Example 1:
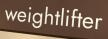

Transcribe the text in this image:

weightlifter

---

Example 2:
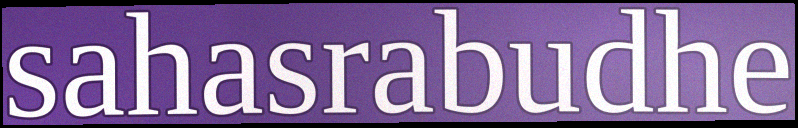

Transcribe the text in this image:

sahasrabudhe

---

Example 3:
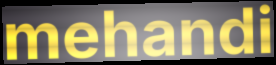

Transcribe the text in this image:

mehandi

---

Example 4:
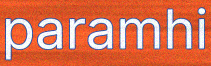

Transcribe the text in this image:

paramhi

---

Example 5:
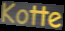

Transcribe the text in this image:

Kotte